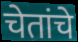
चेतांचे